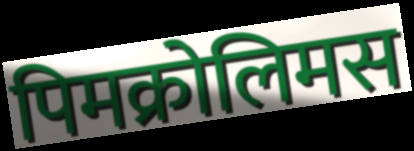
पिमक्रोलिमस